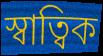
স্বাত্বিক